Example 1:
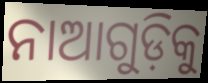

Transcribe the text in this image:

ନାଆଗୁଡ଼ିକୁ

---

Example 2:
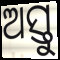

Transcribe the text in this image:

ଅସ୍ତୁ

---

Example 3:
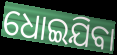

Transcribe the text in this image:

ଧୋଇଯିବା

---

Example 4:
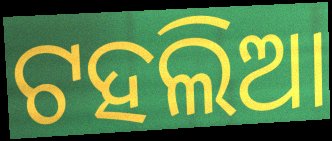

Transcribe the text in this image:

ଟହଲିଆ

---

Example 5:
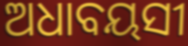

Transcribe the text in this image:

ଅଧାବୟସୀ